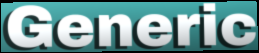
Generic